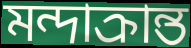
মন্দাক্রান্ত